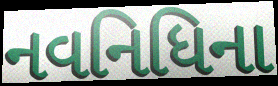
નવનિધિના